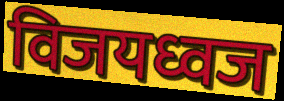
विजयध्वज